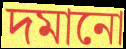
দমানো